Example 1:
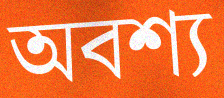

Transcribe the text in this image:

অবশ্য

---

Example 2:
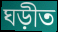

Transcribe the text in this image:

ঘড়ীত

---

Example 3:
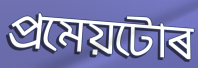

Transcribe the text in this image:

প্ৰমেয়টোৰ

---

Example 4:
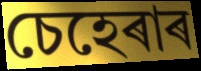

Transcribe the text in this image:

চেহেৰাৰ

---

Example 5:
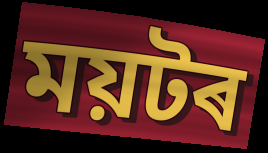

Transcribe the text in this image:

ময়টৰ